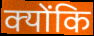
क्‍योंकि